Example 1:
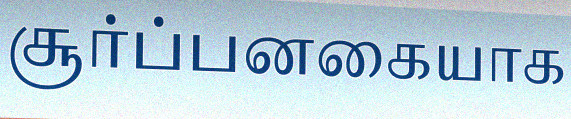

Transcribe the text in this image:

சூர்ப்பனகையாக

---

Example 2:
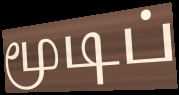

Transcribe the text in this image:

மூடிப்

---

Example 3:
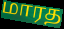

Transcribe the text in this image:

மாரத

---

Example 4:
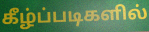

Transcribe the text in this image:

கீழ்ப்படிகளில்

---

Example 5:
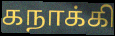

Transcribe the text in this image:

கநாக்கி